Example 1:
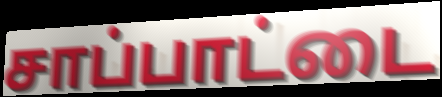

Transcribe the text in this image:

சாப்பாட்டை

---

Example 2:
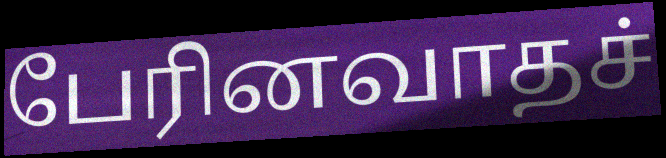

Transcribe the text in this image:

பேரினவாதச்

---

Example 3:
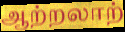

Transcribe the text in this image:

ஆற்றலாற்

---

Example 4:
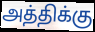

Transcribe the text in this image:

அத்திக்கு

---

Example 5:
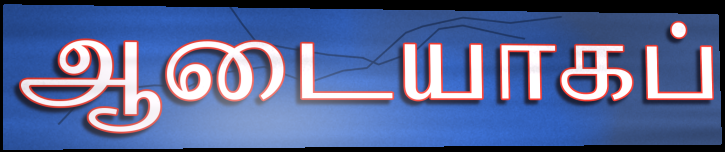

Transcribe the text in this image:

ஆடையாகப்